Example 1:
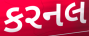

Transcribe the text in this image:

કરનલ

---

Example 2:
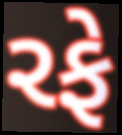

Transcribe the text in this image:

રફે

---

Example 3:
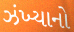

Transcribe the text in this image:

ઝંખ્યાનો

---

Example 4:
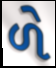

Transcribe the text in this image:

ળે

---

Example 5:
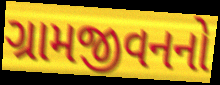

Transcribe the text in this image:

ગ્રામજીવનનો